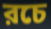
রচে